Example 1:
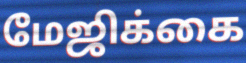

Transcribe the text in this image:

மேஜிக்கை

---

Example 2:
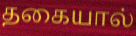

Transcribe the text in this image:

தகையால்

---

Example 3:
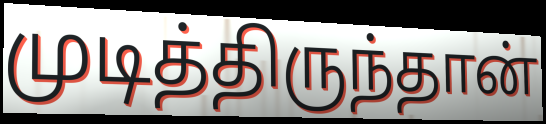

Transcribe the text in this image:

முடித்திருந்தான்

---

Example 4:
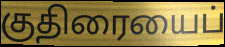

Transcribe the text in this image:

குதிரையைப்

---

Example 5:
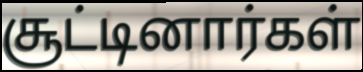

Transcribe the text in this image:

சூட்டினார்கள்